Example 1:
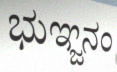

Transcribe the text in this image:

ಭುಞ್ಜನಂ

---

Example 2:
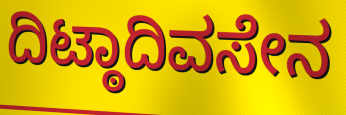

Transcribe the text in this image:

ದಿಟ್ಠಾದಿವಸೇನ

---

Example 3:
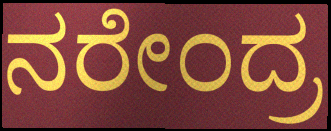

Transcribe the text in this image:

ನರೇಂದ್ರ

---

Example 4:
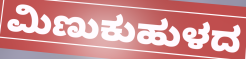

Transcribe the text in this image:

ಮಿಣುಕುಹುಳದ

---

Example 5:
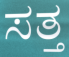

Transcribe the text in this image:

ಸತ್ತ